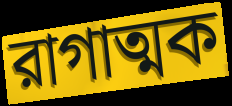
রাগাত্মক